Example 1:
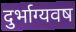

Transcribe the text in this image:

दुर्भाग्यवष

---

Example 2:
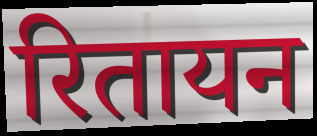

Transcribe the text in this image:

रितायन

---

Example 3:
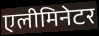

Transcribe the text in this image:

एलीमिनेटर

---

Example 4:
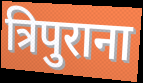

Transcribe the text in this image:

त्रिपुराना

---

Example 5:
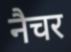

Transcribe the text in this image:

नैचर